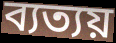
ব্যত্যয়